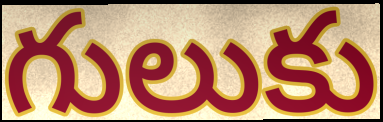
గులుకు